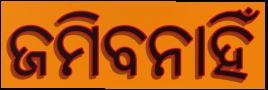
ଜମିବନାହିଁ